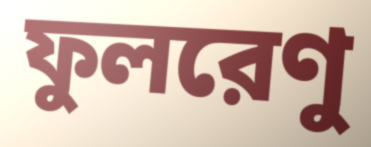
ফুলরেণু